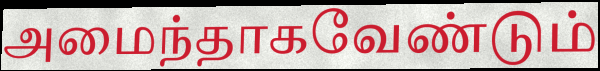
அமைந்தாகவேண்டும்